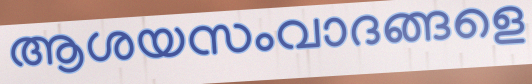
ആശയസംവാദങ്ങളെ